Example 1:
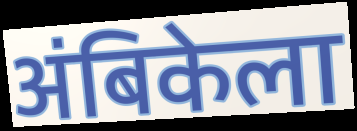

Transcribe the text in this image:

अंबिकेला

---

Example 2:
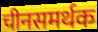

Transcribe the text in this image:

चीनसमर्थक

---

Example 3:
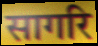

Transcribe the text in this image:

सागरि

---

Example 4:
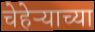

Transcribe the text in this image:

चेहेऱ्याच्या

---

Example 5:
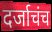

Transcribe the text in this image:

दर्जाचंच